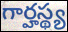
గార్హస్థ్య